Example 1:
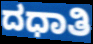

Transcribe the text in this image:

ದಧಾತಿ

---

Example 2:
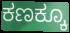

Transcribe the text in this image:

ಕಣಕ್ಕೂ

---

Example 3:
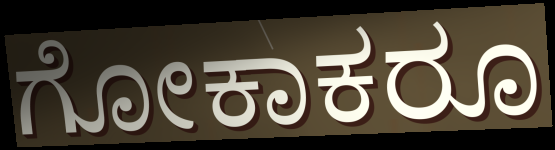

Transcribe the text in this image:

ಗೋಕಾಕರೂ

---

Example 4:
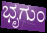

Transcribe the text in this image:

ಭೃಗುಂ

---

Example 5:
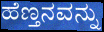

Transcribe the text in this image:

ಹೆಣ್ತನವನ್ನು